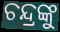
ଚନ୍ଦ୍ରଙ୍କୁ